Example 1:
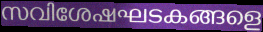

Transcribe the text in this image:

സവിശേഷഘടകങ്ങളെ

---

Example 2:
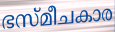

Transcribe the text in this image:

ഭസ്മീചകാര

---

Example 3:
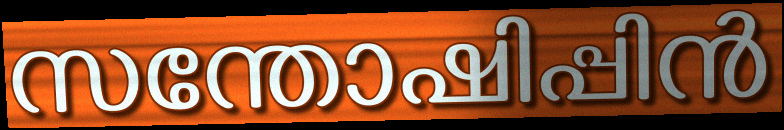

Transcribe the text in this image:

സന്തോഷിപ്പിൻ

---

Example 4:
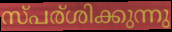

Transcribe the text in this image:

സ്പര്ശിക്കുന്നു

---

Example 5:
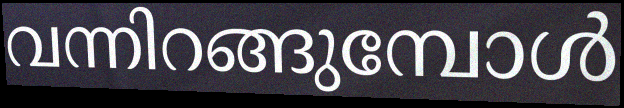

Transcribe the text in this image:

വന്നിറങ്ങുമ്പോൾ